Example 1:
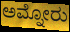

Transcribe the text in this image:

ಅಮ್ನೋರು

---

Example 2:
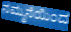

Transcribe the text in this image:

ನಮ್ಮನೆಯಿಂದ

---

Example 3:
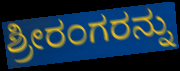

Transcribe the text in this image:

ಶ್ರೀರಂಗರನ್ನು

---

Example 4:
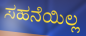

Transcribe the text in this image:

ಸಹನೆಯಿಲ್ಲ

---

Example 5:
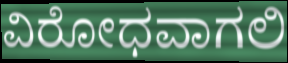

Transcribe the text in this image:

ವಿರೋಧವಾಗಲಿ